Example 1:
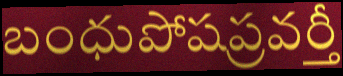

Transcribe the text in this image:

బంధుపోషప్రవర్తీ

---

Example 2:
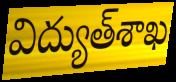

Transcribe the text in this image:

విద్యుత్‌శాఖ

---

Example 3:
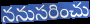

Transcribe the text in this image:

ననుసరించు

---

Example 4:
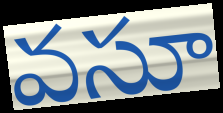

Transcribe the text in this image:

వసూ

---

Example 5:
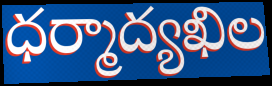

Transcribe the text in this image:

ధర్మాద్యఖిల